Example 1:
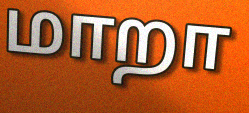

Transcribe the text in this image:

மாறா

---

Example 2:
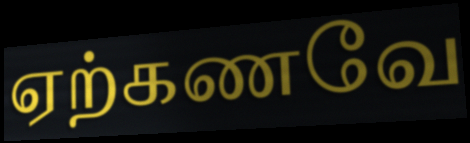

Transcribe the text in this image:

ஏற்கணவே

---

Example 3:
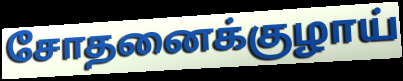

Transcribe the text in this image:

சோதனைக்குழாய்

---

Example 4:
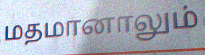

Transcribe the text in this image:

மதமானாலும்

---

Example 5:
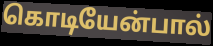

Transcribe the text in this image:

கொடியேன்பால்